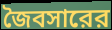
জৈবসারের